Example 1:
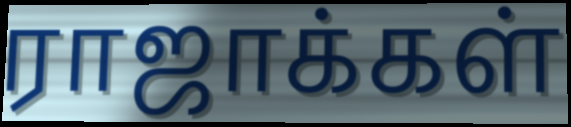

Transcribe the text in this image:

ராஜாக்கள்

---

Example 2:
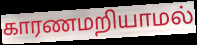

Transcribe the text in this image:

காரணமறியாமல்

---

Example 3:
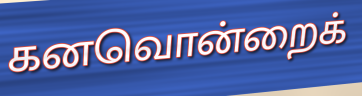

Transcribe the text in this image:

கனவொன்றைக்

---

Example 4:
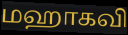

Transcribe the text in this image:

மஹாகவி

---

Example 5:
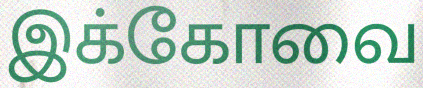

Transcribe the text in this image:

இக்கோவை